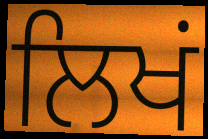
ਲਿਖਂ